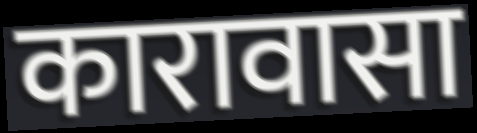
कारावासा